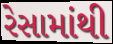
રેસામાંથી